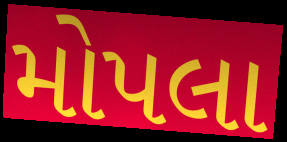
મોપલા